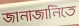
জানাজানিতে